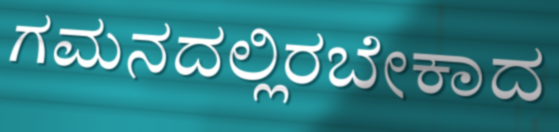
ಗಮನದಲ್ಲಿರಬೇಕಾದ